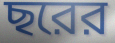
ছরের